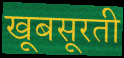
खूबसूरती